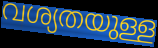
വശ്യതയുള്ള